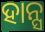
ହାନ୍ସ